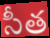
సీత